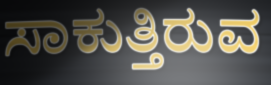
ಸಾಕುತ್ತಿರುವ